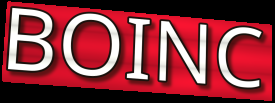
BOINC